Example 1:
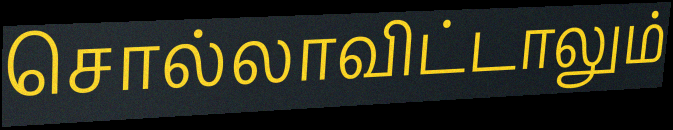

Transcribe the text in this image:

சொல்லாவிட்டாலும்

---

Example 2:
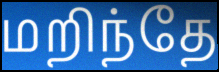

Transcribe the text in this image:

மறிந்தே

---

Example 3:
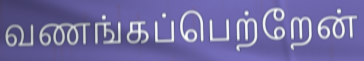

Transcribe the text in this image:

வணங்கப்பெற்றேன்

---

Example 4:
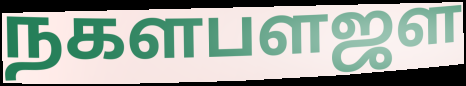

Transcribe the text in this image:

நகளபளஜள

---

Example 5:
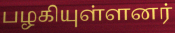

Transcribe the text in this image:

பழகியுள்ளனர்